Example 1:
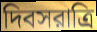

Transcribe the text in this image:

দিবসরাত্রি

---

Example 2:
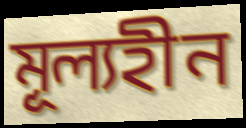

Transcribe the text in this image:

মূল্যহীন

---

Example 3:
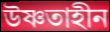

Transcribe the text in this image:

উষ্ণতাহীন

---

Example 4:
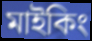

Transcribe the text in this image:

মাইকিং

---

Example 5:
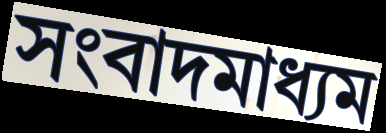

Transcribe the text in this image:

সংবাদমাধ্যম